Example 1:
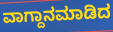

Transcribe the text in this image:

ವಾಗ್ದಾನಮಾಡಿದ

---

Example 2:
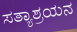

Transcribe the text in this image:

ಸತ್ಯಾಶ್ರಯನ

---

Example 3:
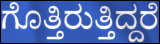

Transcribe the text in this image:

ಗೊತ್ತಿರುತ್ತಿದ್ದರೆ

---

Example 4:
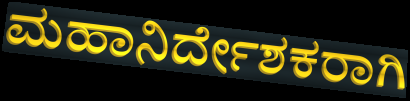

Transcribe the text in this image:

ಮಹಾನಿರ್ದೇಶಕರಾಗಿ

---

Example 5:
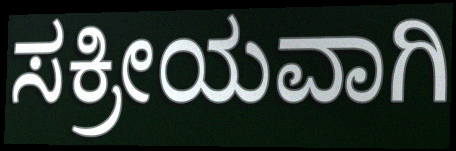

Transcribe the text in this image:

ಸಕ್ರೀಯವಾಗಿ